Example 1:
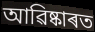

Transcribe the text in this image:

আৱিষ্কাৰত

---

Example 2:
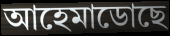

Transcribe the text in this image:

আহেমাডোছে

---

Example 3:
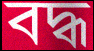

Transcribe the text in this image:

বদ্ধ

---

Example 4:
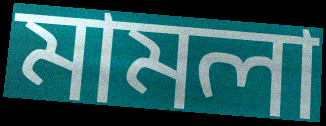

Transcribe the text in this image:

মামলা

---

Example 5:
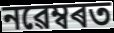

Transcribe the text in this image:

নৱেম্বৰত